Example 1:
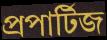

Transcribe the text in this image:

প্রপার্টিজ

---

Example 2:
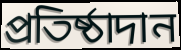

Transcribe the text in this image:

প্রতিষ্ঠাদান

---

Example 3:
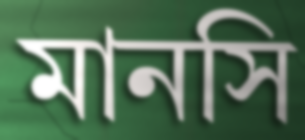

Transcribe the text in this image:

মানসি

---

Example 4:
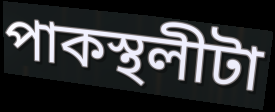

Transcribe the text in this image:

পাকস্থলীটা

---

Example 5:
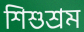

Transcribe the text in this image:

শিশুশ্রম